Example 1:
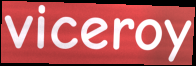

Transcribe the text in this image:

viceroy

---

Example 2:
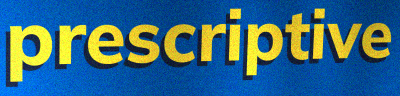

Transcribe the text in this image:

prescriptive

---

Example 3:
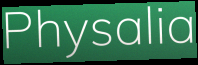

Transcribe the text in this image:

Physalia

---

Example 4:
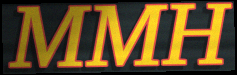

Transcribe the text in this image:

MMH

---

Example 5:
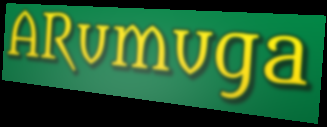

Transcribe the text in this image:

ARumuga